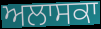
ਅਲਾਸਕਾ